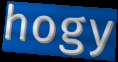
hogy